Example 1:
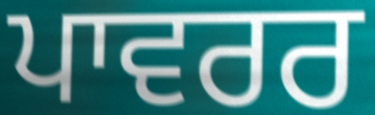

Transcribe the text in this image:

ਪਾਵਰਰ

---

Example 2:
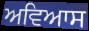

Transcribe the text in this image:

ਅਵਿਆਸ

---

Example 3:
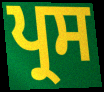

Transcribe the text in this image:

ਪ੍ਰਸ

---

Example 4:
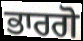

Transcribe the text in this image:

ਭਾਰਗੋ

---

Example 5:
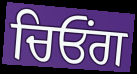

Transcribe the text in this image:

ਚਿਓਂਗ